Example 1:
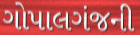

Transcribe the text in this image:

ગોપાલગંજની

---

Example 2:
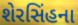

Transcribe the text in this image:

શેરસિંહના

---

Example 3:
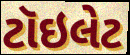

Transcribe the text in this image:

ટૉઇલેટ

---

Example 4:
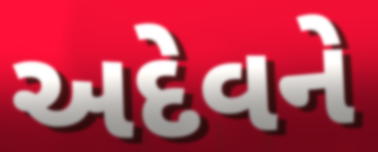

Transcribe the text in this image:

અદેવને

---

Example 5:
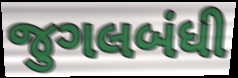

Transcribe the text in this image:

જુગલબંધી